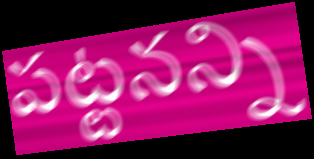
పట్టనన్ని